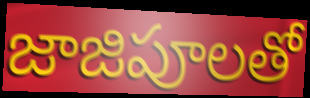
జాజిపూలతో